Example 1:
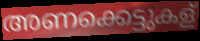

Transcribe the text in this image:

അണക്കെട്ടുകള്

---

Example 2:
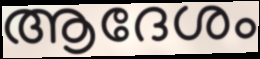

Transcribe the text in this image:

ആദേശം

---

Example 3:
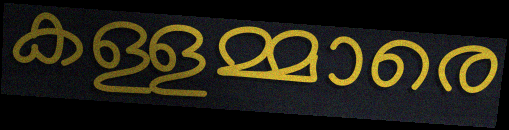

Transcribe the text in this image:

കള്ളമ്മാരെ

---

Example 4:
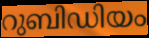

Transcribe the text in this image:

റുബിഡിയം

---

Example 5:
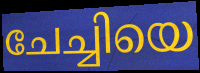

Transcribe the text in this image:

ചേച്ചിയെ